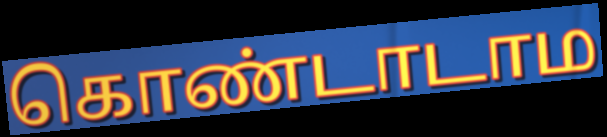
கொண்டாடாம